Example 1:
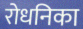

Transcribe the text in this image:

रोधनिका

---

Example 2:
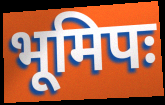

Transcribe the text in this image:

भूमिपः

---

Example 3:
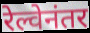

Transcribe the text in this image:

रेल्वेनंतर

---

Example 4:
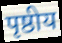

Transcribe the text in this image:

पृष्ठीय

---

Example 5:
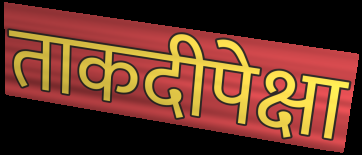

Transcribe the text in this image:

ताकदीपेक्षा